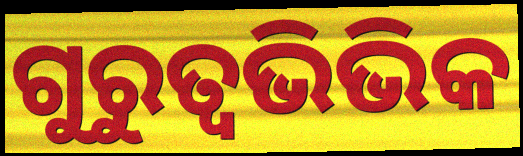
ଗୁରୁତ୍ଵଭିଭିକ